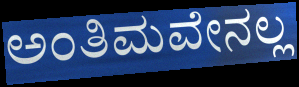
ಅಂತಿಮವೇನಲ್ಲ